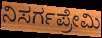
ನಿಸರ್ಗಪ್ರೇಮಿ